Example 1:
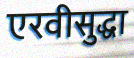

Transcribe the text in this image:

एरवीसुद्धा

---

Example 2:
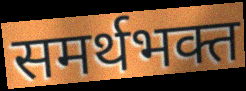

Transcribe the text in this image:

समर्थभक्त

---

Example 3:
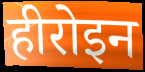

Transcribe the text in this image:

हीरोइन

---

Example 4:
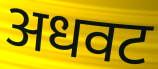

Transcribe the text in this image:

अधवट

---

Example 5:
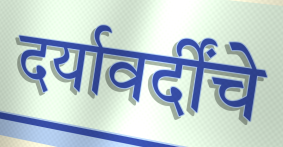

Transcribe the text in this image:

दर्यावर्दींचे